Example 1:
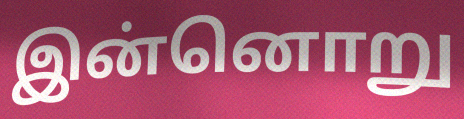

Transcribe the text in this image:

இன்னொறு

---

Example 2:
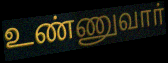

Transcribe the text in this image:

உண்ணுவார்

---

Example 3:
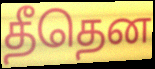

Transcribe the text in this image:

தீதென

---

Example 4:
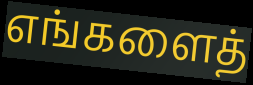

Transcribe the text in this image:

எங்களைத்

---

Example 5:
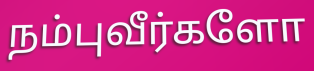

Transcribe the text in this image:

நம்புவீர்களோ